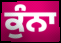
ਕੁੰਨਾ